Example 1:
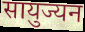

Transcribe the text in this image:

सायुज्यन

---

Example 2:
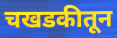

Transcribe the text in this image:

चखडकीतून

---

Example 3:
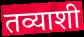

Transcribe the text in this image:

तव्याशी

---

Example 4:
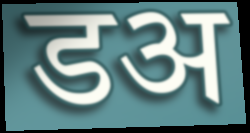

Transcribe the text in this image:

डअ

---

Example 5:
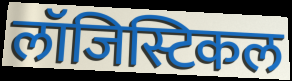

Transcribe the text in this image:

लॉजिस्टिकल